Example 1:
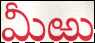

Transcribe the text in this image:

మీఱు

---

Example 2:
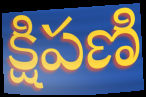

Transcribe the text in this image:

క్షిపణి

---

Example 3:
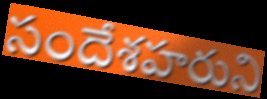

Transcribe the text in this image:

సందేశహరుని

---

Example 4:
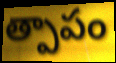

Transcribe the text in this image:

త్పాపం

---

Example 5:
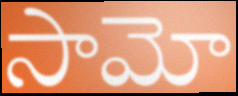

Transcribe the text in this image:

సామో